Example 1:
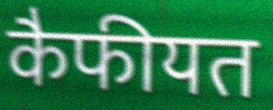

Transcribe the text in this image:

कैफीयत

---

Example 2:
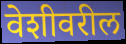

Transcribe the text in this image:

वेशीवरील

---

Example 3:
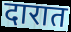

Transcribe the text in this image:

दारात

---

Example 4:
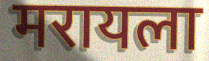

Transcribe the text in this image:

मरायला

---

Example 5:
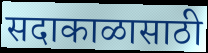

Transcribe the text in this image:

सदाकाळासाठी